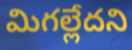
మిగల్లేదని